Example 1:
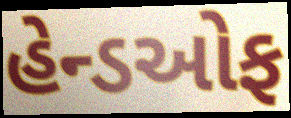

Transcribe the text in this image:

હેન્ડઓફ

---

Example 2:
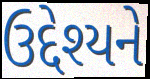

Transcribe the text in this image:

ઉદ્દેશ્યને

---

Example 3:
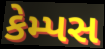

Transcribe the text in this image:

કેમ્પસ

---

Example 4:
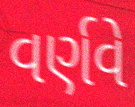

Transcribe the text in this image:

વર્ણવે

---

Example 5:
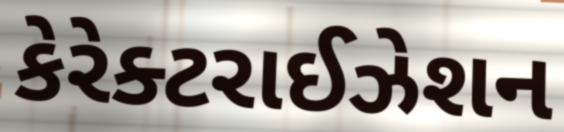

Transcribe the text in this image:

કેરેક્ટરાઈઝેશન